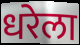
धरेला